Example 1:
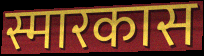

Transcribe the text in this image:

स्मारकास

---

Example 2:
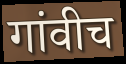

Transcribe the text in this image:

गांवीच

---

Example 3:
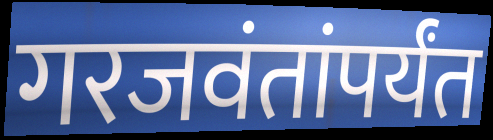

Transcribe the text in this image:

गरजवंतांपर्यंत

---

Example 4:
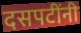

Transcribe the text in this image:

दसपटींनी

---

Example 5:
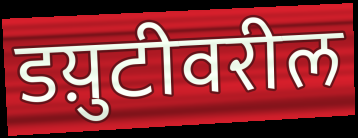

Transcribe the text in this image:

डय़ुटीवरील